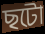
ছটো